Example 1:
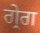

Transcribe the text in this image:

ਗ੍ਰੇਗ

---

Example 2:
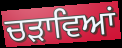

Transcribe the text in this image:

ਚੜਾਵਿਆਂ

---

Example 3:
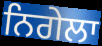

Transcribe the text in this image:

ਨਿਗੇਲਾ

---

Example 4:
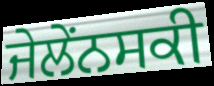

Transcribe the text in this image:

ਜੇਲੇਂਨਸਕੀ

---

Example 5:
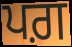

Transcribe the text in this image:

ਪਗ਼